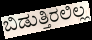
ಬಿಡುತ್ತಿರಲಿಲ್ಲ